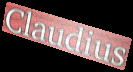
Claudius